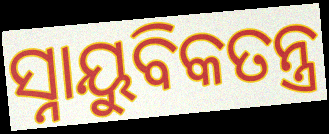
ସ୍ନାୟୁବିକତନ୍ତ୍ର